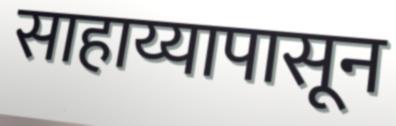
साहाय्यापासून